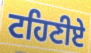
ਟਹਿਣੀਏ